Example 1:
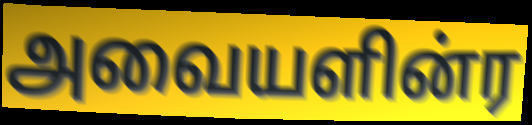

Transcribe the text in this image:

அவையளின்ர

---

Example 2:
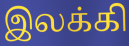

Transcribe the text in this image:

இலக்கி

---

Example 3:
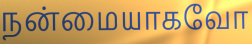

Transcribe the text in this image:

நன்மையாகவோ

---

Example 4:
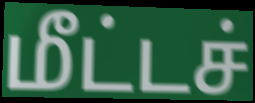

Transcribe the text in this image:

மீட்டச்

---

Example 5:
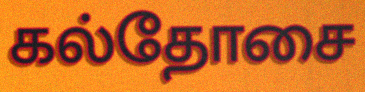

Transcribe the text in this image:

கல்தோசை